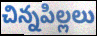
చిన్నపిల్లలు